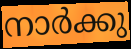
നാർക്കു